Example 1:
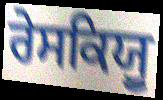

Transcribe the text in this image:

ਰੇਸਕਿਯੂ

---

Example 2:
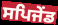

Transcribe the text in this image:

ਸਪਿਜੇਂਡ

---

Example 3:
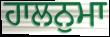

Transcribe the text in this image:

ਹਾਲਨੁਮਾ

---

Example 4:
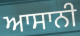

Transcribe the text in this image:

ਆਸਾਨੀ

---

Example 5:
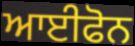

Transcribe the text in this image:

ਆਈਫੋਨ